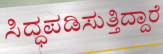
ಸಿದ್ಧಪಡಿಸುತ್ತಿದ್ದಾರೆ